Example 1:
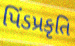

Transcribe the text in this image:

પિંડપ્રકૃતિ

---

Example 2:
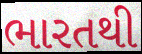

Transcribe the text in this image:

ભારતથી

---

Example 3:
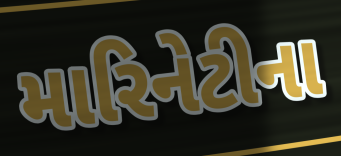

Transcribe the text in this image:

મારિનેટીના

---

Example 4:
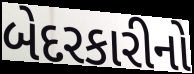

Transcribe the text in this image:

બેદરકારીનો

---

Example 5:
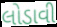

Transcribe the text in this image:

લોડાવી